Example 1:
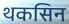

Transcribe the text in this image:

थकसिन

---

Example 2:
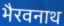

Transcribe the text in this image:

भैरवनाथ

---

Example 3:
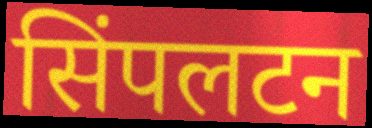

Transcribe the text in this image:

सिंपलटन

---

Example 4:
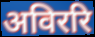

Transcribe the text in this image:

अविररि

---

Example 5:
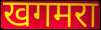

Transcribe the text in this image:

खगमरा